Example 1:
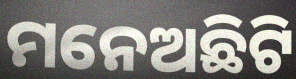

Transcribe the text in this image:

ମନେଅଛିଟି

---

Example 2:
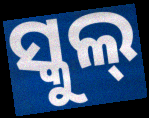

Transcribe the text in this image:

ସ୍କୁଲ୍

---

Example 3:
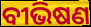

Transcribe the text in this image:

ବୀଭିଷଣ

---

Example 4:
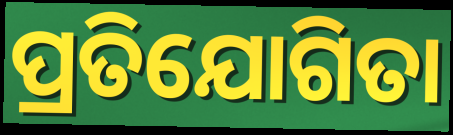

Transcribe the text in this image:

ପ୍ରତିଯୋଗିତା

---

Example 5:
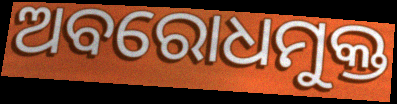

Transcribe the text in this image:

ଅବରୋଧମୁକ୍ତ